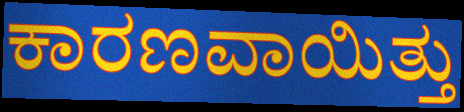
ಕಾರಣವಾಯಿತ್ತು